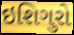
ઇશિગુરો